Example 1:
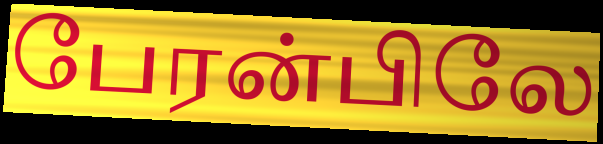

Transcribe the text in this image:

பேரன்பிலே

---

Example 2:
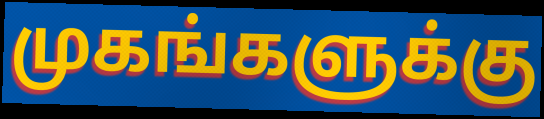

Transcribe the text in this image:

முகங்களுக்கு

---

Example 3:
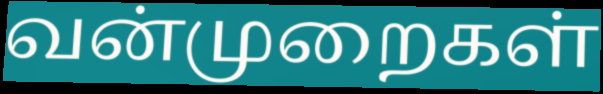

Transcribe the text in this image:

வன்முறைகள்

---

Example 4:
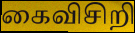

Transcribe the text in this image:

கைவிசிறி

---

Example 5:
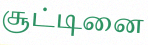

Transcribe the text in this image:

சூட்டினை